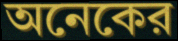
অনেকের